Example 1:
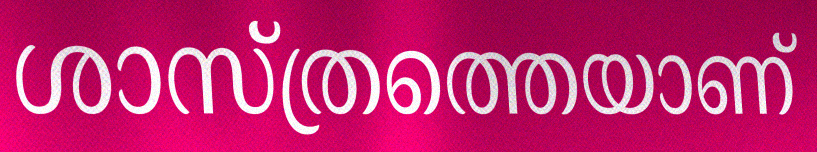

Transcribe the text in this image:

ശാസ്ത്രത്തെയാണ്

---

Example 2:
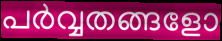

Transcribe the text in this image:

പർവ്വതങ്ങളോ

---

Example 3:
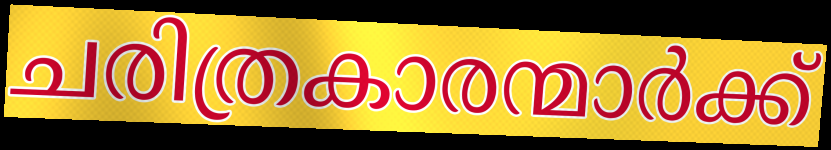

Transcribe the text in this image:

ചരിത്രകാരന്മാർക്ക്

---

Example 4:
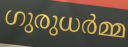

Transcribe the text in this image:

ഗുരുധർമ്മ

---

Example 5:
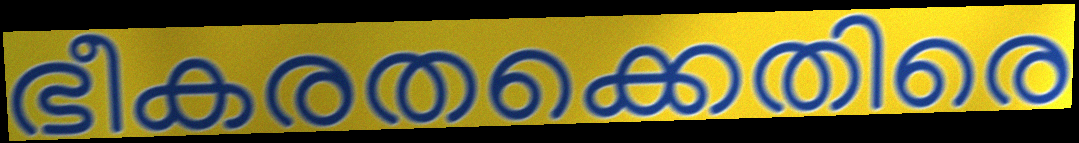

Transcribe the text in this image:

ഭീകരതക്കെതിരെ